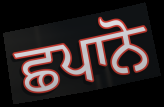
ਛਪਾਨੋ